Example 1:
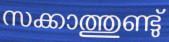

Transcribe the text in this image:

സക്കാത്തുണ്ടു്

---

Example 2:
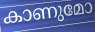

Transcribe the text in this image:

കാണുമോ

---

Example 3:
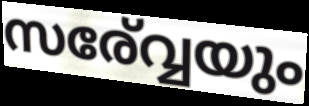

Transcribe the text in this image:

സര്വ്വേയും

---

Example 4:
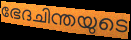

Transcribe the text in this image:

ഭേദചിന്തയുടെ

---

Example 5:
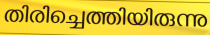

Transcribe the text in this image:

തിരിച്ചെത്തിയിരുന്നു